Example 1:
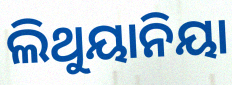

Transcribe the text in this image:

ଲିଥୁୟାନିୟା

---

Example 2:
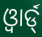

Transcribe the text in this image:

ଓ୍ୱାର୍ଡ୍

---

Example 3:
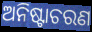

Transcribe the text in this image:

ଅନିଷ୍ଟାଚରଣ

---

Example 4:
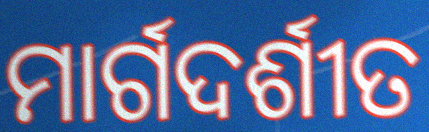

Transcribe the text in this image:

ମାର୍ଗଦର୍ଶୀତ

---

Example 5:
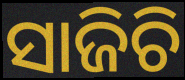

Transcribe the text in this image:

ସାଜିଚି